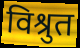
विश्रुत